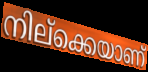
നില്ക്കെയാണ്